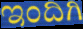
ಇಂದಿಗಿ